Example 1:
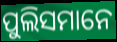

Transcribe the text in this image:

ପୁଲିସମାନେ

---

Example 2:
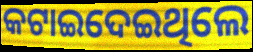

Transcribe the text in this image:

କଟାଇଦେଇଥିଲେ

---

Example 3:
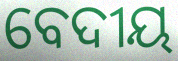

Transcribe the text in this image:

ବେଦୀୟ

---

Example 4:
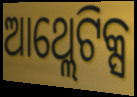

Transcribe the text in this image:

ଆଥ୍ଲେଟିକ୍ସ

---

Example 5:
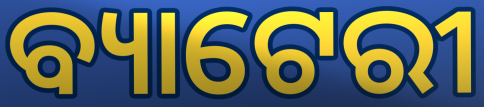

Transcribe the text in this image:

ବ୍ୟାଟେରୀ